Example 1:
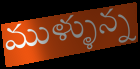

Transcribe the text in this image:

ముళ్ళున్న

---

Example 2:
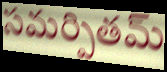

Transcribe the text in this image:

సమర్పితమ్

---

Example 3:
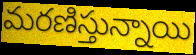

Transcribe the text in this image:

మరణిస్తున్నాయి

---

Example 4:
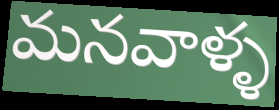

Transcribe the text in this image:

మనవాళ్ళ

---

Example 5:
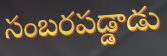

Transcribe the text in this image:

సంబరపడ్డాడు